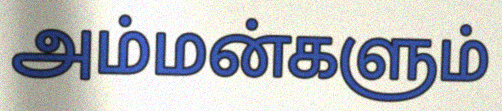
அம்மன்களும்